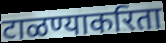
टाळण्याकरिता